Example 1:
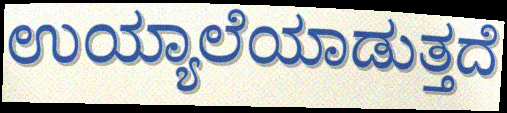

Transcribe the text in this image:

ಉಯ್ಯಾಲೆಯಾಡುತ್ತದೆ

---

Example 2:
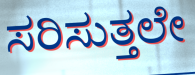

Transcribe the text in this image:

ಸರಿಸುತ್ತಲೇ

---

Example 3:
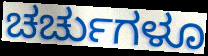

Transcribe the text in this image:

ಚರ್ಚುಗಳೂ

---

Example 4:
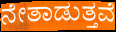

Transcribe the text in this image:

ನೇತಾಡುತ್ತವೆ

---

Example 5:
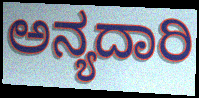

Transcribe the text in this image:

ಅನ್ಯದಾರಿ